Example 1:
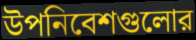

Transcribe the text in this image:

উপনিবেশগুলোর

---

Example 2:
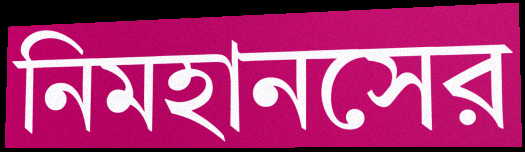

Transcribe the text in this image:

নিমহানসের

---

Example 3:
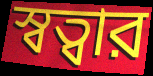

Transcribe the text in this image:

স্বত্বার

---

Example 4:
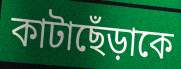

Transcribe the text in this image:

কাটাছেঁড়াকে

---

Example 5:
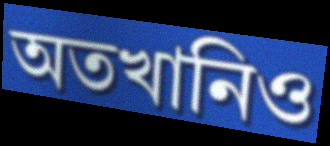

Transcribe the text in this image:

অতখানিও